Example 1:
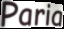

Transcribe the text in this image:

Paria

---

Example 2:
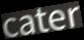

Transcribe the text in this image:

cater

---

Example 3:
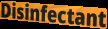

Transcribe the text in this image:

Disinfectant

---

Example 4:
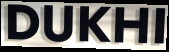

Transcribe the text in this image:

DUKHI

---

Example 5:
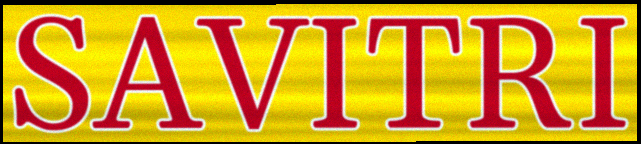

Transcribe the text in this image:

SAVITRI